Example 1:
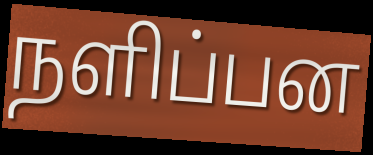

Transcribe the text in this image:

நளிப்பன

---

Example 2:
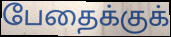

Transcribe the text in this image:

பேதைக்குக்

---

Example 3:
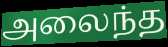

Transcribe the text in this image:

அலைந்த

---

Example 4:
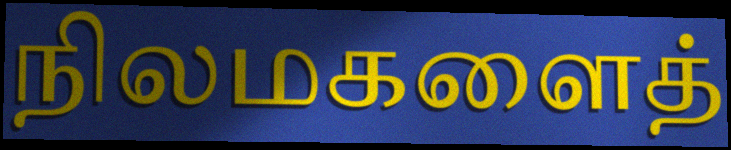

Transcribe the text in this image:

நிலமகளைத்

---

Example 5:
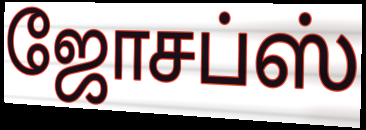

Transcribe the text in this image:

ஜோசப்ஸ்